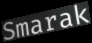
Smarak